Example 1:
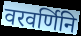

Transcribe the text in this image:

वरवर्णिनि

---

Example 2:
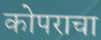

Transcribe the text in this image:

कोपराचा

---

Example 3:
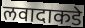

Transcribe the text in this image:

लवादाकडे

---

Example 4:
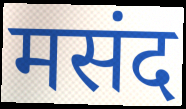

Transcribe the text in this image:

मसंद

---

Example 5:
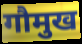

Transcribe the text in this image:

गौमुख